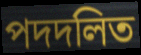
পদদলিত